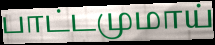
பாட்டமுமாய்